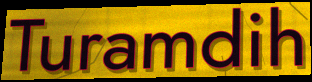
Turamdih